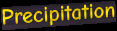
Precipitation